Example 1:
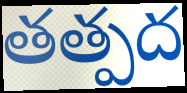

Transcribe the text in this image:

తత్పద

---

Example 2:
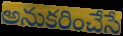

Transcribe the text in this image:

అనుకరించేసే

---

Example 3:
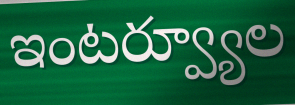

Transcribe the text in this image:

ఇంటర్వ్యూల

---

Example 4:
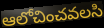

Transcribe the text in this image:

ఆలోచించవలసి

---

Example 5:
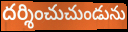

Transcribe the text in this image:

దర్శించుచుండును